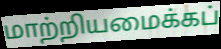
மாற்றியமைக்கப்